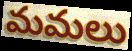
మమలు